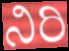
ನಿರಿ